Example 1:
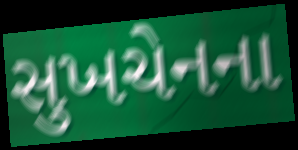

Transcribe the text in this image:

સુખચેનના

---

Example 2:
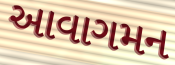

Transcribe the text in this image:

આવાગમન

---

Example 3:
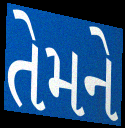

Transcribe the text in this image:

તેમને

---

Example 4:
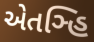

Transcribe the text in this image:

એતઞ્હિ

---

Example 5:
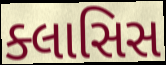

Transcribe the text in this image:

ક્લાસિસ